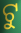
ଟୁ